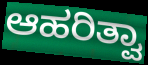
ಆಹರಿತ್ವಾ